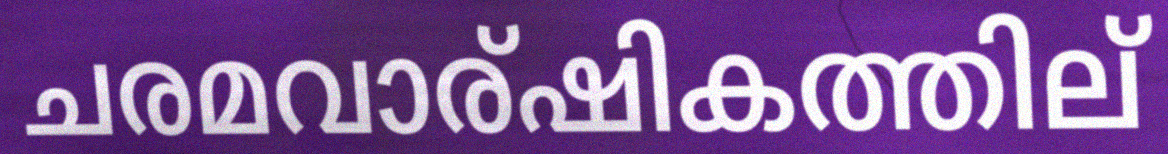
ചരമവാര്ഷികത്തില്